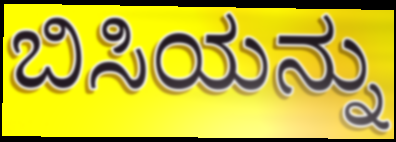
ಬಿಸಿಯನ್ನು